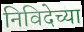
निविदेच्या